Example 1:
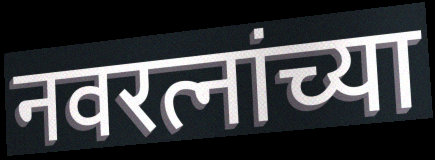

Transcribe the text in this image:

नवरत्नांच्या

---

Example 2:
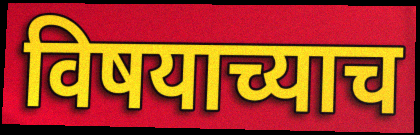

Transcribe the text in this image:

विषयाच्याच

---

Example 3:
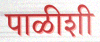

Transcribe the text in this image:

पाळीशी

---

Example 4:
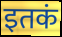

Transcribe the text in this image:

इतकं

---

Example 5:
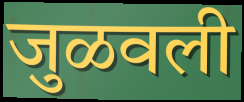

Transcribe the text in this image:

जुळवली